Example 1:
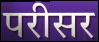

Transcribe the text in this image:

परीसर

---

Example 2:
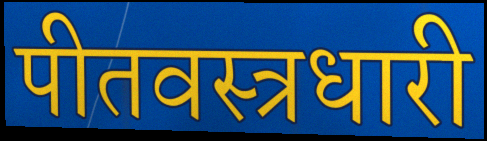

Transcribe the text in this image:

पीतवस्त्रधारी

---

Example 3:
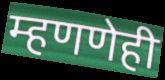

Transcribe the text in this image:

म्हणणेही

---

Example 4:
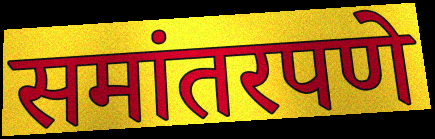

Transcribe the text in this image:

समांतरपणे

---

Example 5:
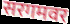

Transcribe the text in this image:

सरगमवर